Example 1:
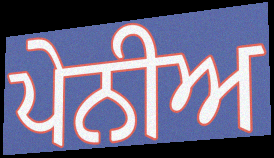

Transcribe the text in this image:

ਪੇਨੀਅ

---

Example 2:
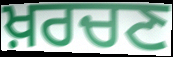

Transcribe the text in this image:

ਖ਼ਰਚਣ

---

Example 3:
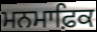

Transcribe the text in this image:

ਮਨਮਾਫ਼ਿਕ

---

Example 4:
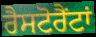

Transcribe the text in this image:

ਰੈਸਟੋਰੈਂਟਾਂ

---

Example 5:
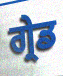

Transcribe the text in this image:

ਗ੍ਰੇਡ